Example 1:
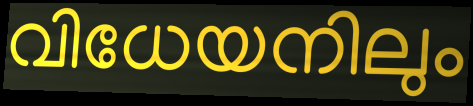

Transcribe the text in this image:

വിധേയനിലും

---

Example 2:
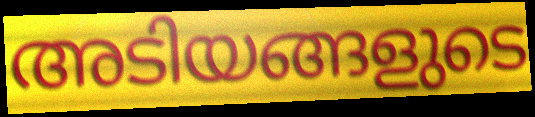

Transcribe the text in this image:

അടിയങ്ങളുടെ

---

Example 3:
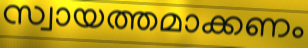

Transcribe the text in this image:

സ്വായത്തമാക്കണം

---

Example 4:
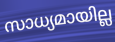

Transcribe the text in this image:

സാധ്യമായില്ല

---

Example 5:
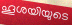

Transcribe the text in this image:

ഹൂശയിയുടെ